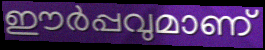
ഈർപ്പവുമാണ്